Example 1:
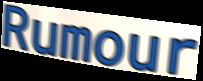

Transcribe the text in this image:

Rumour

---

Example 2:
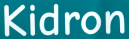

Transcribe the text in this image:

Kidron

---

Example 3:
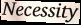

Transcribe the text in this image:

Necessity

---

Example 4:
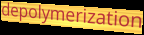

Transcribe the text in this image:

depolymerization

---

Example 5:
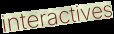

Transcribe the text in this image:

interactives